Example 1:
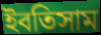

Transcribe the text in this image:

ইবতিসাম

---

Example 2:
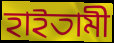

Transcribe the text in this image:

হাইতামী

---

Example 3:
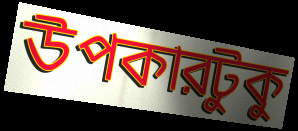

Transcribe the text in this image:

উপকারটুকু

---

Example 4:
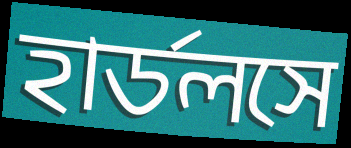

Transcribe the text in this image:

হার্ডলসে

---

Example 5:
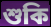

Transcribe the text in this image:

শুকি